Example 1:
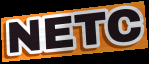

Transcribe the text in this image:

NETC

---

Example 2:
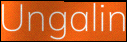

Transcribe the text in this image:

Ungalin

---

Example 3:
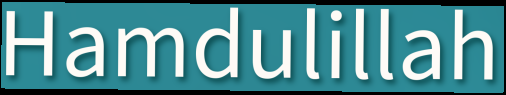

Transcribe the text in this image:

Hamdulillah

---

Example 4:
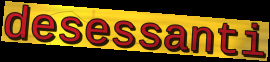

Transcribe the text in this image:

desessanti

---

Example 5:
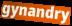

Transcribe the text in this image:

gynandry